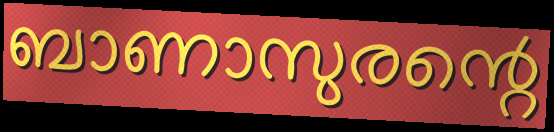
ബാണാസുരന്റെ